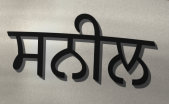
ਸਨੀਲ